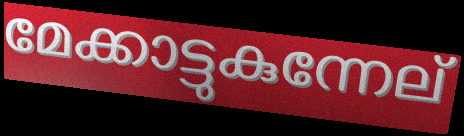
മേക്കാട്ടുകുന്നേല്